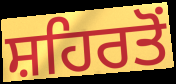
ਸ਼ਹਿਰਤੋਂ